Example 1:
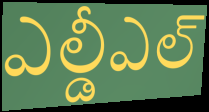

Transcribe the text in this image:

ఎల్డీఎల్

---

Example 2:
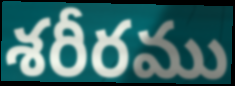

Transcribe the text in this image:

శరీరము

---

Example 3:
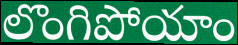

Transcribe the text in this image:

లొంగిపోయాం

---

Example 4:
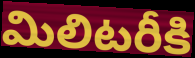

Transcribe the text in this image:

మిలిటరీకి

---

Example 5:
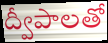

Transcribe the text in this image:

ద్వీపాలతో